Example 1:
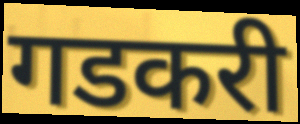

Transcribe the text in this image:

गडकरी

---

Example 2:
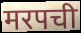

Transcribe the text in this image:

मरपची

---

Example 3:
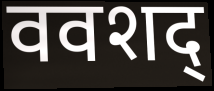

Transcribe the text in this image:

ववशद्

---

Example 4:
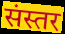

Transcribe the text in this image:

संस्तर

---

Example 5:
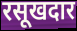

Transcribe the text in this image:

रसूखदार